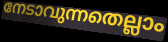
നേടാവുന്നതെല്ലാം